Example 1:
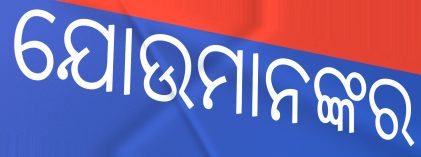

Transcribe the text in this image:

ଯୋଉମାନଙ୍କର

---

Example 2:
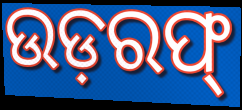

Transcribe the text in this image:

ଉଡ଼ରଫ୍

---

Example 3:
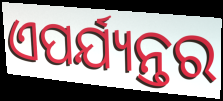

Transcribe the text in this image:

ଏପର୍ଯ୍ୟନ୍ତର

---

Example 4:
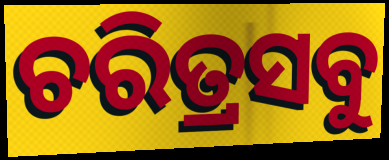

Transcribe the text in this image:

ଚରିତ୍ରସବୁ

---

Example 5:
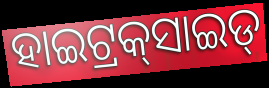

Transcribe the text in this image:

ହାଇଟ୍ରକ୍‌ସାଇଡ୍